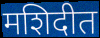
मशिदीत